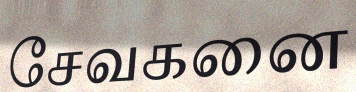
சேவகனை